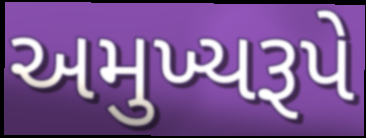
અમુખ્યરૂપે